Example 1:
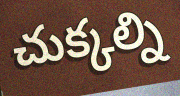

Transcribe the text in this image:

చుక్కల్ని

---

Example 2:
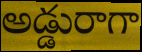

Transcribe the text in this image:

అడ్డురాగా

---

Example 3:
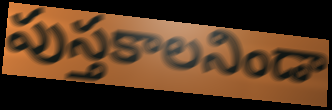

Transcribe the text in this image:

పుస్తకాలనిండా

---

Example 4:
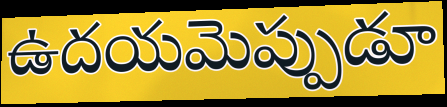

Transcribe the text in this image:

ఉదయమెప్పుడూ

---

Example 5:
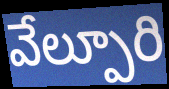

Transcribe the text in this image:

వేల్పూరి